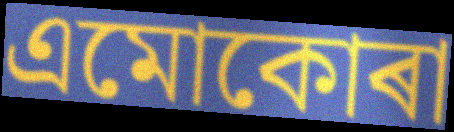
এমোকোৰা